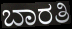
ಬಾರತಿ